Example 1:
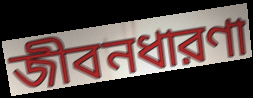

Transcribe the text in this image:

জীবনধারণা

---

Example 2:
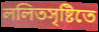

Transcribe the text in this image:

ললিতসৃষ্টিতে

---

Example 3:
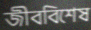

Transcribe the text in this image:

জীববিশেষ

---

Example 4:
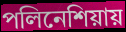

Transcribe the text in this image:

পলিনেশিয়ায়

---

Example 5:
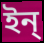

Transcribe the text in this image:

ইন্